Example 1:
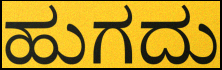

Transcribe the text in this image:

ಹುಗದು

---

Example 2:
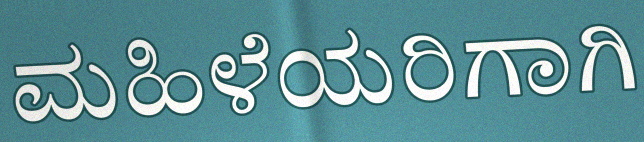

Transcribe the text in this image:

ಮಹಿಳೆಯರಿಗಾಗಿ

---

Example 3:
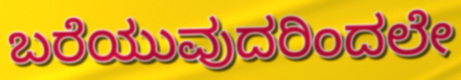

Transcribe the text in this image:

ಬರೆಯುವುದರಿಂದಲೇ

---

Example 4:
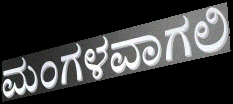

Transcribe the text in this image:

ಮಂಗಳವಾಗಲಿ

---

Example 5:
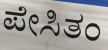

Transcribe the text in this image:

ಪೇಸಿತಂ